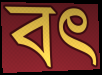
বৎ